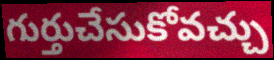
గుర్తుచేసుకోవచ్చు